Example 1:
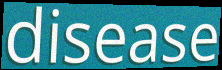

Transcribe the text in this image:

disease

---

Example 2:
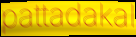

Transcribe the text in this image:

pattadakal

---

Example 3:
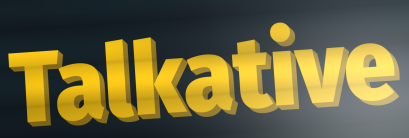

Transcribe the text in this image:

Talkative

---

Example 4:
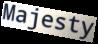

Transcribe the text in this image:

Majesty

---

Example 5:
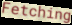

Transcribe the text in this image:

Fetching